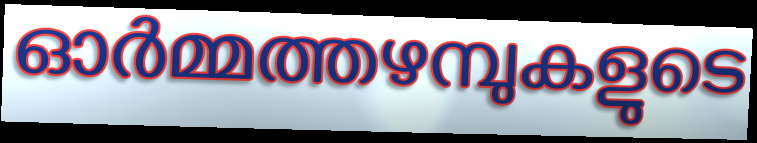
ഓർമ്മത്തഴമ്പുകളുടെ